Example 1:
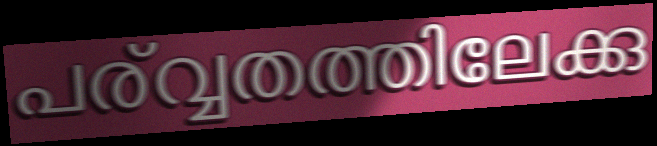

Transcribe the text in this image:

പര്വ്വതത്തിലേക്കു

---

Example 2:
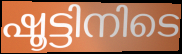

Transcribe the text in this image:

ഷൂട്ടിനിടെ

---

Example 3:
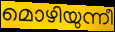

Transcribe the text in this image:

മൊഴിയുന്നീ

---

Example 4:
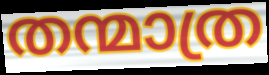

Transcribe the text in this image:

തന്മാത്ര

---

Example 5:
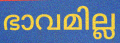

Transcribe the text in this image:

ഭാവമില്ല